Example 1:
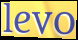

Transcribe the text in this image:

levo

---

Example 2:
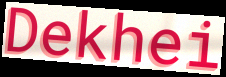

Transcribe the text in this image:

Dekhei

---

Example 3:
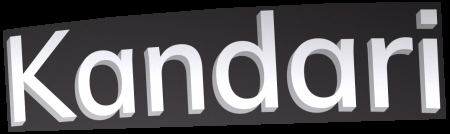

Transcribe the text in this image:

Kandari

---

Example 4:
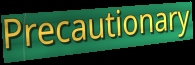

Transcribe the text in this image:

Precautionary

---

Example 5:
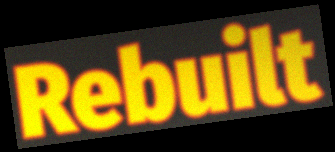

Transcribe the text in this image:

Rebuilt